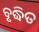
ବୃଦ୍ଧିତ